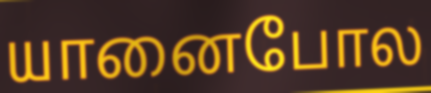
யானைபோல